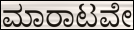
ಮಾರಾಟವೇ